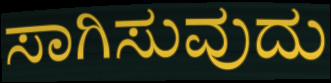
ಸಾಗಿಸುವುದು